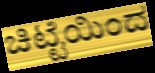
ಚಿಟ್ಟೆಯಿಂದ